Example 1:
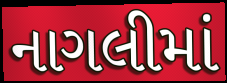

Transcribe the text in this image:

નાગલીમાં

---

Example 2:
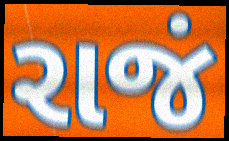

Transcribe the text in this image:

રાજં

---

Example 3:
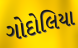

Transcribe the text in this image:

ગોદોલિયા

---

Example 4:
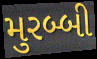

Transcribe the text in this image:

મુરબ્બી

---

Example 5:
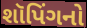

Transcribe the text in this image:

શૉપિંગનો